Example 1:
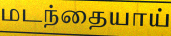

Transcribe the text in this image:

மடந்தையாய்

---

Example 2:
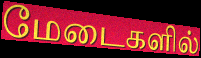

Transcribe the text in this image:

மேடைகளில்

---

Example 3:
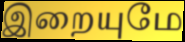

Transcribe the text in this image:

இறையுமே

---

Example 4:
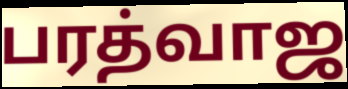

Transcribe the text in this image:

பரத்வாஜ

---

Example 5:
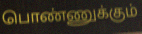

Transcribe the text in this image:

பொண்ணுக்கும்